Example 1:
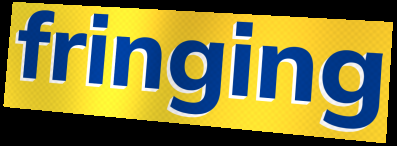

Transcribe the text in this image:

fringing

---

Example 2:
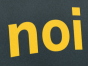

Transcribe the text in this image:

noi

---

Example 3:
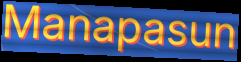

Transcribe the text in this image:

Manapasun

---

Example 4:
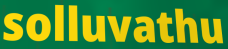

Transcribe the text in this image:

solluvathu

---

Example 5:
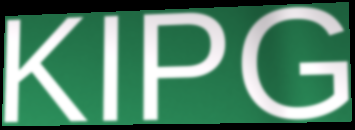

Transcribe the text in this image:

KIPG